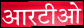
आरटीओ